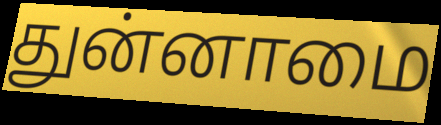
துன்னாமை